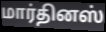
மார்தினஸ்